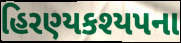
હિરણ્યકશ્યપના